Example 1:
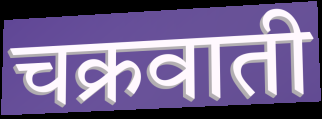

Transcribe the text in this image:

चक्रवाती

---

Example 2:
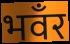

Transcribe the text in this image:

भवँर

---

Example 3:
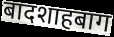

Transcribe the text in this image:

बादशाहबाग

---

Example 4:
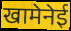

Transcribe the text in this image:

खामेनेई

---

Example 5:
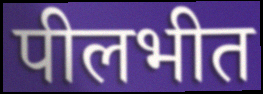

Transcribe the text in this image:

पीलभीत